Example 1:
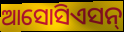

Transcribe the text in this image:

ଆସୋସିଏସନ୍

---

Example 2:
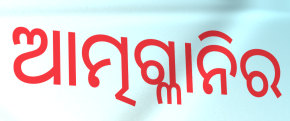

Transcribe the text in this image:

ଆତ୍ମଗ୍ଳାନିର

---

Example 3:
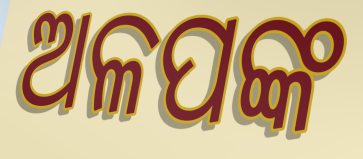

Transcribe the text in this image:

ଅଳପଙ୍କ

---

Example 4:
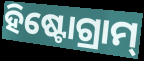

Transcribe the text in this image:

ହିଷ୍ଟୋଗ୍ରାମ୍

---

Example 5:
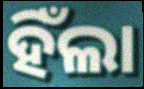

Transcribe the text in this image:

ହିଁଲା